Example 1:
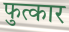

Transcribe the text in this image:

फुत्कार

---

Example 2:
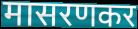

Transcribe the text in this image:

मासरणकर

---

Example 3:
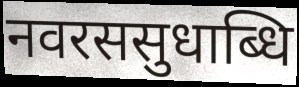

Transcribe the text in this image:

नवरससुधाब्धि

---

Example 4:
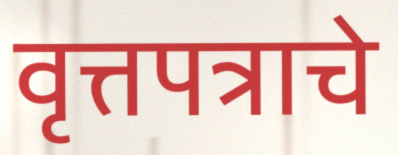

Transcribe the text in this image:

वृत्तपत्राचे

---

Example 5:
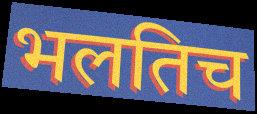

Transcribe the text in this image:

भलतिच